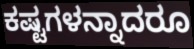
ಕಷ್ಟಗಳನ್ನಾದರೂ